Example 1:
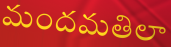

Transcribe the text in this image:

మందమతిలా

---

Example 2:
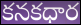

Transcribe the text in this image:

కనకధార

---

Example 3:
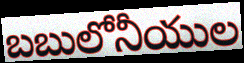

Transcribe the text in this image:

బబులోనీయుల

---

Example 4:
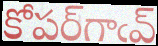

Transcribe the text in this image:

కోపర్‌గాఁవ్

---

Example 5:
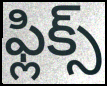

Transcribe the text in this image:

ఫ్లిక్స్